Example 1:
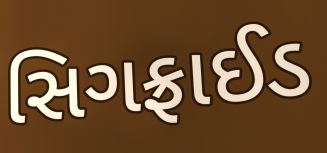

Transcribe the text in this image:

સિગફ્રાઈડ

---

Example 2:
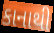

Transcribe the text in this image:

કાનાથી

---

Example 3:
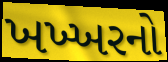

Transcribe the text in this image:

ખખ્ખરનો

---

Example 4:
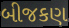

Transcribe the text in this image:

બીજકણ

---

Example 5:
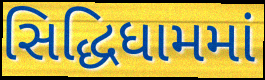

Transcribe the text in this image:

સિદ્ધિધામમાં